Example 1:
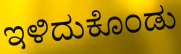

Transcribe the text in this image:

ಇಳಿದುಕೊಂಡು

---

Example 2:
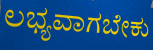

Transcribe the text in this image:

ಲಭ್ಯವಾಗಬೇಕು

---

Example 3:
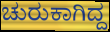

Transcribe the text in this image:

ಚುರುಕಾಗಿದ್ದ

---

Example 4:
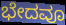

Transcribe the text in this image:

ಭೇದವೂ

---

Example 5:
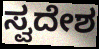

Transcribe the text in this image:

ಸ್ವದೇಶ